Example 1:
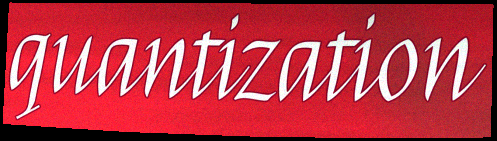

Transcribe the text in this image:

quantization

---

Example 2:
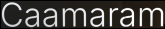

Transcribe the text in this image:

Caamaram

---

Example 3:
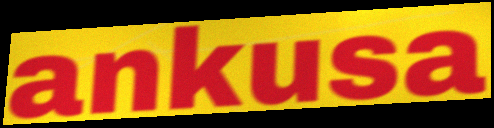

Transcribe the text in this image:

ankusa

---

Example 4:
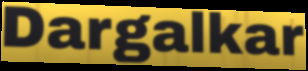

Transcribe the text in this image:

Dargalkar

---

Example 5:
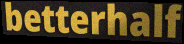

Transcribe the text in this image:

betterhalf